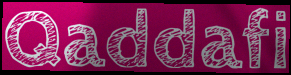
Qaddafi